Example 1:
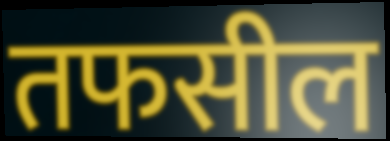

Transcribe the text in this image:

तफसील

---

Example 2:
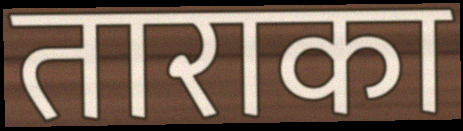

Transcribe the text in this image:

ताराका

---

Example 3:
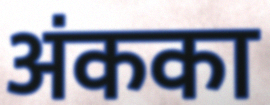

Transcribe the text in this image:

अंकका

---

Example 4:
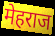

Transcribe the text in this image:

मेहराज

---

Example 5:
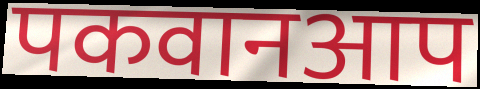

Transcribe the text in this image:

पकवानआप